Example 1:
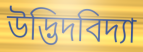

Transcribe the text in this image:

উদ্ভিদবিদ্যা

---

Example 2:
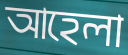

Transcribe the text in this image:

আহেলা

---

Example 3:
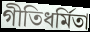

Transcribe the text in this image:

গীতিধর্মিতা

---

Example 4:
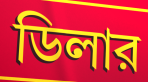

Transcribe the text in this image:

ডিলার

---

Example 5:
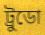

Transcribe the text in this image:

ট্রুডো